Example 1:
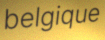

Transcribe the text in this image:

belgique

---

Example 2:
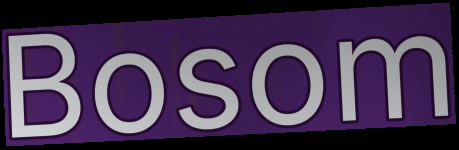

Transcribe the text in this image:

Bosom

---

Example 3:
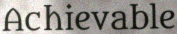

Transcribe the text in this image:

Achievable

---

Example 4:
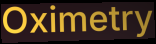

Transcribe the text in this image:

Oximetry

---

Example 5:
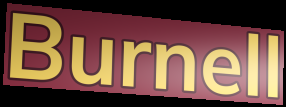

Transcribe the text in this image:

Burnell